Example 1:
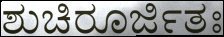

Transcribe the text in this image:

ಶುಚಿರೂರ್ಜಿತಃ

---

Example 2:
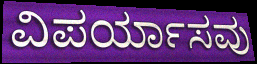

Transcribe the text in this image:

ವಿಪರ್ಯಾಸವು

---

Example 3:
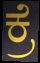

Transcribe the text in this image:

ಕ್ರೆ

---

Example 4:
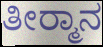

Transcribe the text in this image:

ತೀರ‍್ಮಾನ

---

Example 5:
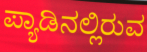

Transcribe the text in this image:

ಪ್ಯಾಡಿನಲ್ಲಿರುವ